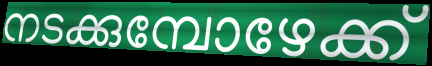
നടക്കുമ്പോഴേക്ക്